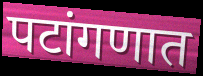
पटांगणात